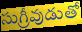
సుగ్రీవుడుతో